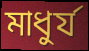
মাধুর্য